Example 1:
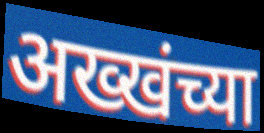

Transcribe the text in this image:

अख्खंच्या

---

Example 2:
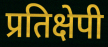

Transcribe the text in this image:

प्रतिक्षेपी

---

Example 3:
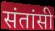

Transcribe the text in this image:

संतांसी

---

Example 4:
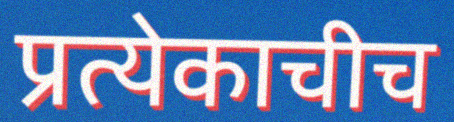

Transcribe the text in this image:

प्रत्येकाचीच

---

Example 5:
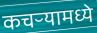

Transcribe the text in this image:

कचऱ्यामध्ये